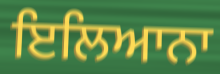
ਇਲਿਆਨਾ